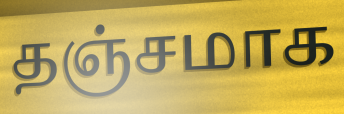
தஞ்சமாக